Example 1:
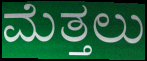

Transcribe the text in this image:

ಮೆತ್ತಲು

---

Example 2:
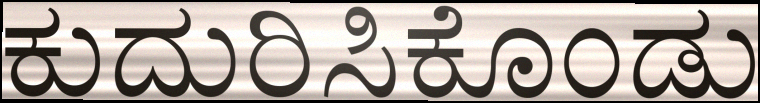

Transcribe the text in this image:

ಕುದುರಿಸಿಕೊಂಡು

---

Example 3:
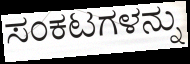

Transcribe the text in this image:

ಸಂಕಟಗಳನ್ನು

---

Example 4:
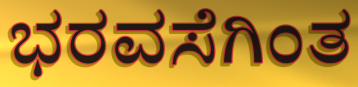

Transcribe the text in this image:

ಭರವಸೆಗಿಂತ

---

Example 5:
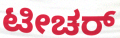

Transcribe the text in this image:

ಟೀಚರ್